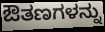
ಔತಣಗಳನ್ನು